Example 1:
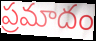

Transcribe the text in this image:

ప్రమాదం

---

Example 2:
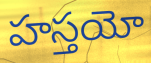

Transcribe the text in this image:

హస్తయో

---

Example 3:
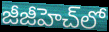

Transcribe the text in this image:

జీజీహెచ్‌లో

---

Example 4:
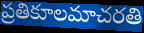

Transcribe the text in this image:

ప్రతికూలమాచరతి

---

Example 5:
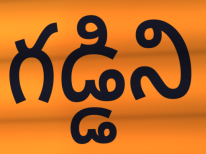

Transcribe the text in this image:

గడ్డిని